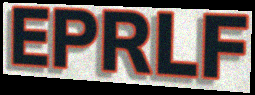
EPRLF